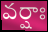
వర్షాః